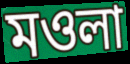
মওলা